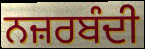
ਨਜ਼ਰਬੰਦੀ